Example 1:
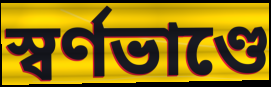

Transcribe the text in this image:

স্বর্ণভাণ্ডে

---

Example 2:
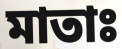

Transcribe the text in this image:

মাতাঃ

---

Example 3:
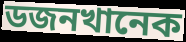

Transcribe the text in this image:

ডজনখানেক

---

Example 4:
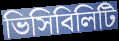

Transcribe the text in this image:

ভিসিবিলিটি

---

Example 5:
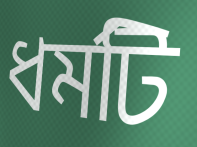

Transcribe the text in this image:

ধর্মটি